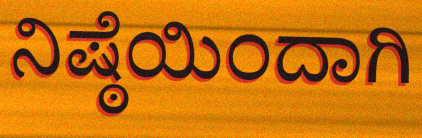
ನಿಷ್ಠೆಯಿಂದಾಗಿ